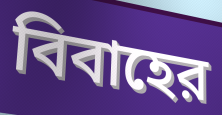
বিবাহের